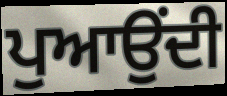
ਪੁਆਉਂਦੀ